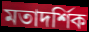
মতাদর্শিক